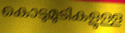
കൊടുമുടികളുള്ള